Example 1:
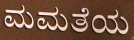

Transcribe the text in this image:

ಮಮತೆಯ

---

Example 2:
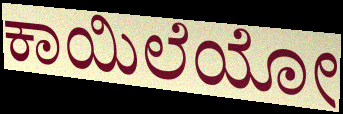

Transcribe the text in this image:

ಕಾಯಿಲೆಯೋ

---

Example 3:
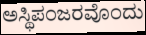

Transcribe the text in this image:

ಅಸ್ಥಿಪಂಜರವೊಂದು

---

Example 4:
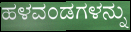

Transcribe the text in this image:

ಹಳವಂಡಗಳನ್ನು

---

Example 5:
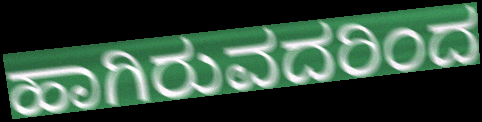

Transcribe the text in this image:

ಹಾಗಿರುವದರಿಂದ